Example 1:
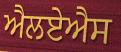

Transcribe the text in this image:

ਐਲਏਐਸ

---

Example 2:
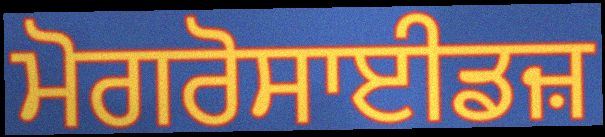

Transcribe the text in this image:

ਮੋਗਰੋਸਾਈਡਜ਼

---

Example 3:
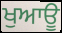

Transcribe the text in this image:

ਖੁਆਊ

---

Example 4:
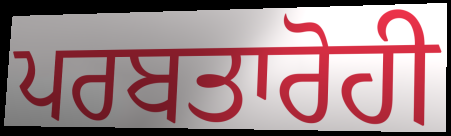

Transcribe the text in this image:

ਪਰਬਤਾਰੋਹੀ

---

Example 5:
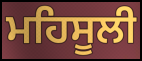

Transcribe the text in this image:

ਮਹਿਸੂਲੀ